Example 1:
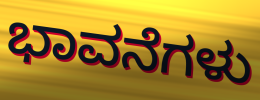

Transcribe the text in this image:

ಭಾವನೆಗಳು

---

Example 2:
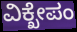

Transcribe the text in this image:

ವಿಕ್ಖೇಪಂ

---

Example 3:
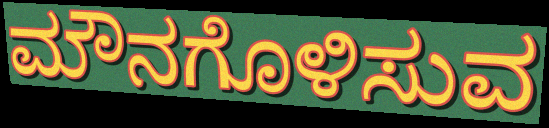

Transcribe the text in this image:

ಮೌನಗೊಳಿಸುವ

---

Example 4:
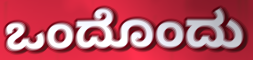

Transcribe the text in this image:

ಒಂದೊಂದು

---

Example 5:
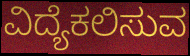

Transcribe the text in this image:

ವಿದ್ಯೆಕಲಿಸುವ